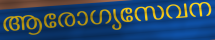
ആരോഗ്യസേവന